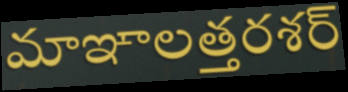
మాఞాలత్తరశర్